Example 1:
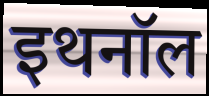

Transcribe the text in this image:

इथनॉल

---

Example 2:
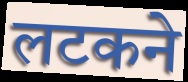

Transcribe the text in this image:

लटकने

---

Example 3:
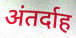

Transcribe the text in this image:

अंतर्दाह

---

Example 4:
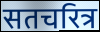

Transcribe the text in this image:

सतचरित्र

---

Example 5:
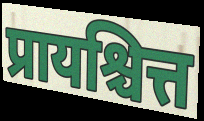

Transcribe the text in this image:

प्रायश्चित्त